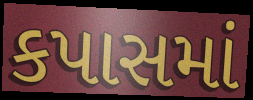
કપાસમાં